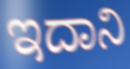
ಇದಾನಿ